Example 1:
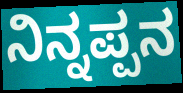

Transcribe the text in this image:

ನಿನ್ನಪ್ಪನ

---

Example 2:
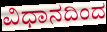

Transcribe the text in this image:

ವಿಧಾನದಿಂದ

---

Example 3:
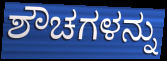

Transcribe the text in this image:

ಶೌಚಗಳನ್ನು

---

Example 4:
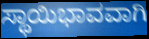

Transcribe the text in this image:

ಸ್ಥಾಯಿಭಾವವಾಗಿ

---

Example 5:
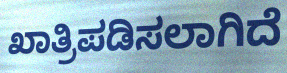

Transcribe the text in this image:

ಖಾತ್ರಿಪಡಿಸಲಾಗಿದೆ